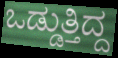
ಒಡ್ಡುತ್ತಿದ್ದ